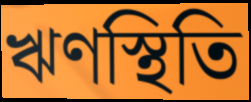
ঋণস্থিতি